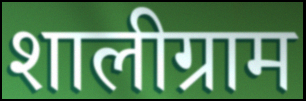
शालीग्राम